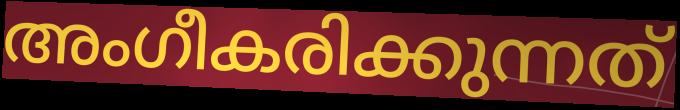
അംഗീകരിക്കുന്നത്